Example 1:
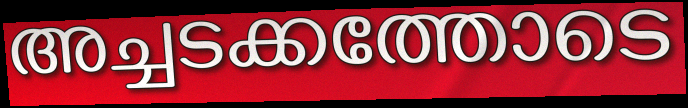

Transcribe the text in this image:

അച്ചടക്കത്തോടെ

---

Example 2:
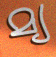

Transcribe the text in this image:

മ്യ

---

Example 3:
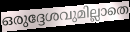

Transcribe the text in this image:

ഒരുദ്ദേശവുമില്ലാതെ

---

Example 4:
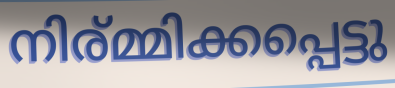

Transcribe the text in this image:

നിര്മ്മിക്കപ്പെട്ടു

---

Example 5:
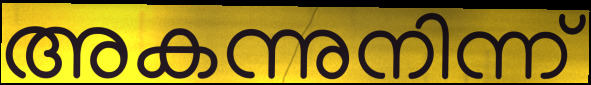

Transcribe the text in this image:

അകന്നുനിന്ന്